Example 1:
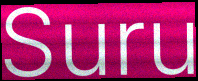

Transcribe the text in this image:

Suru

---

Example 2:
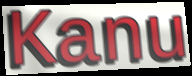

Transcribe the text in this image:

Kanu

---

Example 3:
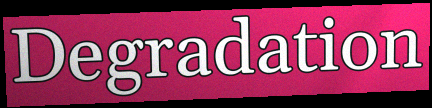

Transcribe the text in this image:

Degradation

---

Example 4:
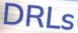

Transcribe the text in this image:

DRLs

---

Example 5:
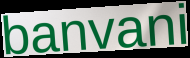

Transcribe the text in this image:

banvani